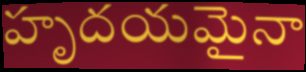
హృదయమైనా